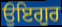
ਉਇਗੁਰ